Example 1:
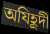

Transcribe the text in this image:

অযিহূদী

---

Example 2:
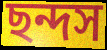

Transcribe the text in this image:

ছন্দস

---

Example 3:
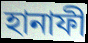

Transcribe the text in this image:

হানাফী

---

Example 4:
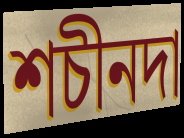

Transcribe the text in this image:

শচীনদা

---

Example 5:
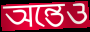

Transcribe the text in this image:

অন্তেও